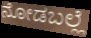
ನೋಡಬಲ್ಲೆ